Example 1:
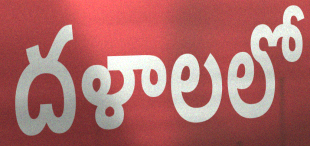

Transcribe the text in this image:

దళాలలో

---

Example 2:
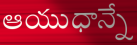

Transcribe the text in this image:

ఆయుధాన్నే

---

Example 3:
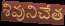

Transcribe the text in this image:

శివునిచేత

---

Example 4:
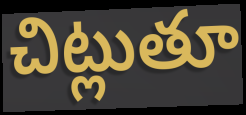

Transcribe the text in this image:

చిట్లుతూ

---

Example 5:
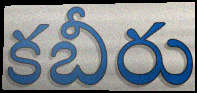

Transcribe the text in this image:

కబీరు